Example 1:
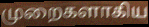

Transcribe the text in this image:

முறைகளாகிய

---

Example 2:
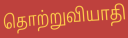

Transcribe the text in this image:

தொற்றுவியாதி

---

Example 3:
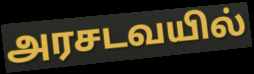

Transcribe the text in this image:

அரசடவயில்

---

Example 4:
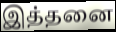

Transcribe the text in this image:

இத்தனை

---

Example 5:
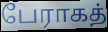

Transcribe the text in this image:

பேராகத்